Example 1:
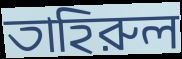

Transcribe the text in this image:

তাহিরুল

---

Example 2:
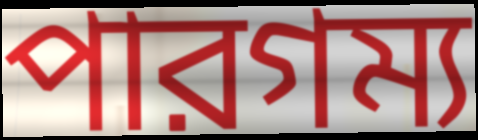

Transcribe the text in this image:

পারগম্য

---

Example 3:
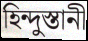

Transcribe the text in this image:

হিন্দুস্তানী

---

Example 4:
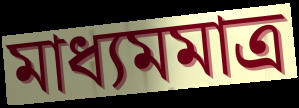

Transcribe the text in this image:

মাধ্যমমাত্র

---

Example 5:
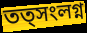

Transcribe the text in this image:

তত্সংলগ্ন